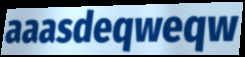
aaasdeqweqw